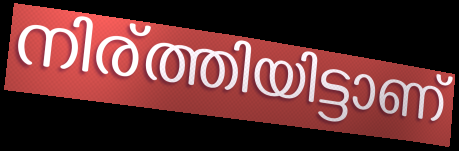
നിര്ത്തിയിട്ടാണ്